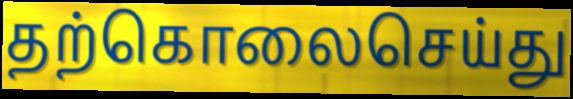
தற்கொலைசெய்து